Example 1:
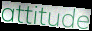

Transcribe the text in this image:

attitude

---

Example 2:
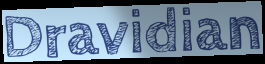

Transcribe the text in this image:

Dravidian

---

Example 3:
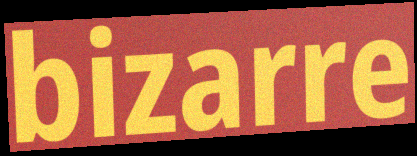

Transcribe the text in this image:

bizarre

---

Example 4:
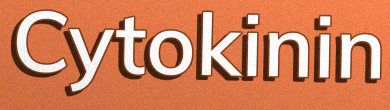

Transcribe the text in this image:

Cytokinin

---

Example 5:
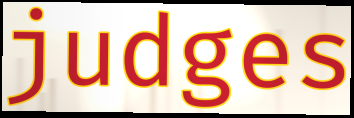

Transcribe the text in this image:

judges